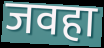
जवहा